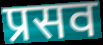
प्रसव